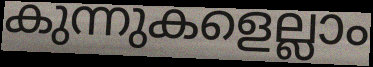
കുന്നുകളെല്ലാം